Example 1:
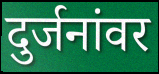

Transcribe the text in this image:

दुर्जनांवर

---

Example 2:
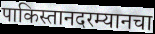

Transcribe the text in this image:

पाकिस्तानदरम्यानचा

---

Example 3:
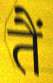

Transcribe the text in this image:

तैं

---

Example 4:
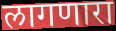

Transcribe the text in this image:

लागणारा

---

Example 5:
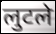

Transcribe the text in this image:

लुटले